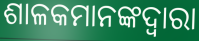
ଶାଳକମାନଙ୍କଦ୍ୱାରା